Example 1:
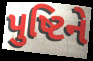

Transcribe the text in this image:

પુષ્ટિને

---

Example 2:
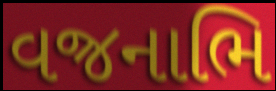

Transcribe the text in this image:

વજ્રનાભિ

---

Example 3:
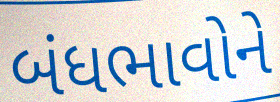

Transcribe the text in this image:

બંધભાવોને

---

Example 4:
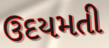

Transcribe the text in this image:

ઉદયમતી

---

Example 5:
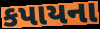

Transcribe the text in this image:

કપાયના